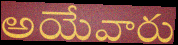
అయేవారు